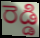
రెడ్డి